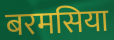
बरमसिया